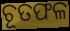
ଚୂତଫଳ